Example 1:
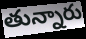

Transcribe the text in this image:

తున్నారు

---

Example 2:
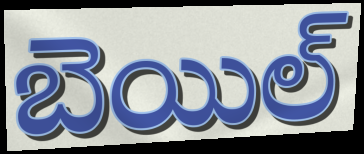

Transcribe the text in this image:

బెయిల్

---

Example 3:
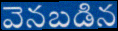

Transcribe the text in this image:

వెనబడిన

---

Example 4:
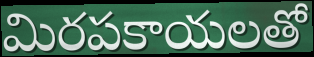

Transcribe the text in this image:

మిరపకాయలతో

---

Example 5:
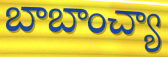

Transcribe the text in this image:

బాబాంచ్యా